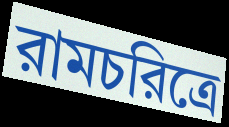
রামচরিত্রে